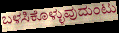
ಬಳಸಿಕೊಳ್ಳುವುದುಂಟು